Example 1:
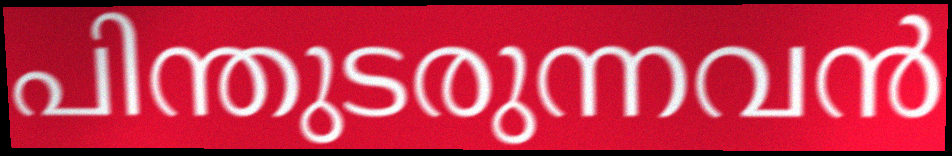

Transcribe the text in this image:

പിന്തുടരുന്നവൻ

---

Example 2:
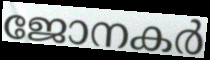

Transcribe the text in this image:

ജോനകർ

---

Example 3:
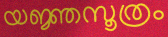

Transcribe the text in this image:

യജ്ഞസൂത്രം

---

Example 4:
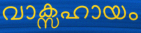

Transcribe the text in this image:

വാക്സഹായം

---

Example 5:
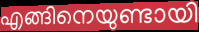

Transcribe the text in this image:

എങ്ങിനെയുണ്ടായി